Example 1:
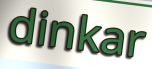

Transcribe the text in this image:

dinkar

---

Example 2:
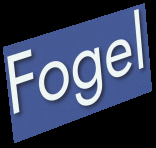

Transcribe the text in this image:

Fogel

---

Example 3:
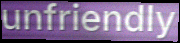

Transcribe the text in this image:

unfriendly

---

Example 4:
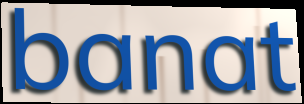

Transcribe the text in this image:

banat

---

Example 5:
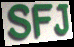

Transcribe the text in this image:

SFJ